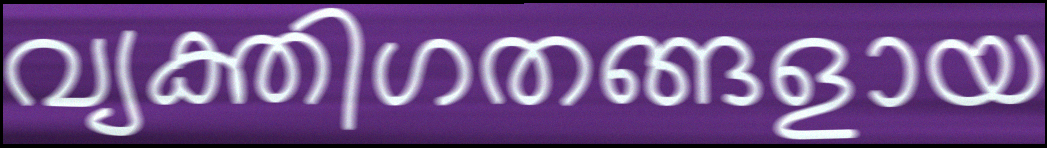
വ്യക്തിഗതങ്ങളായ